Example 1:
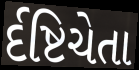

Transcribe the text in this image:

ર્દષ્ટિચેતા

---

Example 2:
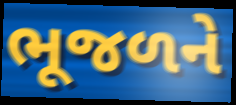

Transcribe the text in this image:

ભૂજળને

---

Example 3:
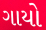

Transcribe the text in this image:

ગાયો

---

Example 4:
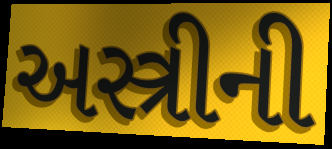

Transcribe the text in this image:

અસ્ત્રીની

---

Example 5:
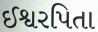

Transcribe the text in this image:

ઈશ્વરપિતા